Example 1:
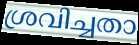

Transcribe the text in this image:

ശ്രവിച്ചതാ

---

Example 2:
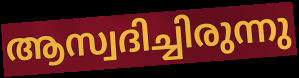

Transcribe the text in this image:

ആസ്വദിച്ചിരുന്നു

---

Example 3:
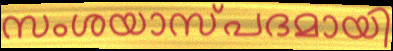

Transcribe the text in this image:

സംശയാസ്പദമായി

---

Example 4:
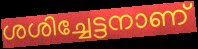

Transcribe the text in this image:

ശശിച്ചേട്ടനാണ്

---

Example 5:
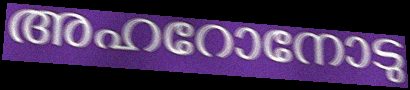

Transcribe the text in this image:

അഹറോനോടു